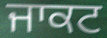
ਜਾਕਟ